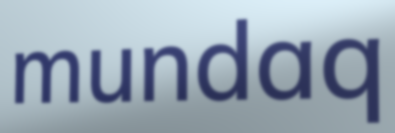
mundaq